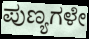
ಪುಣ್ಯಗಳೇ